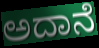
ಅದಾನೆ